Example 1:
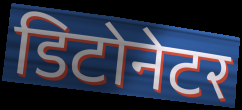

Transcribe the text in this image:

डिटोनेटर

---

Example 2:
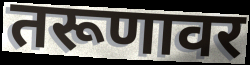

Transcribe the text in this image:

तरूणावर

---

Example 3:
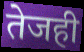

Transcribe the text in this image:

तेजही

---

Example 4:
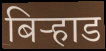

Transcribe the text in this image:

बिऱ्हाड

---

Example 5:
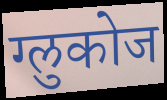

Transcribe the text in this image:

ग्लुकोज